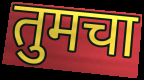
तुमचा